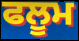
ਫਲੂਮ